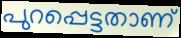
പുറപ്പെട്ടതാണ്